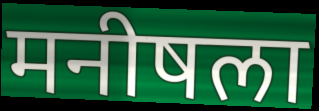
मनीषला